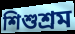
শিশুশ্রম